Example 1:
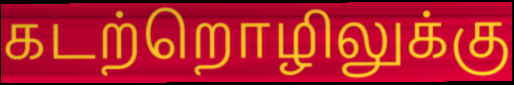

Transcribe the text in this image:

கடற்றொழிலுக்கு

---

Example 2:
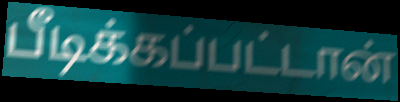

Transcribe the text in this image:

பீடிக்கப்பட்டான்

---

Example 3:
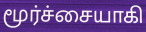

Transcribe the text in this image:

மூர்ச்சையாகி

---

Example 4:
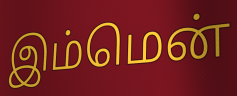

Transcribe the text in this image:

இம்மென்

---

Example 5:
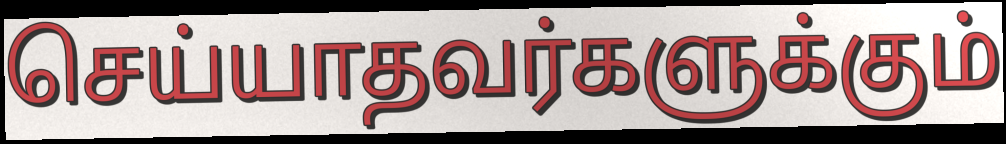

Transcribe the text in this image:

செய்யாதவர்களுக்கும்